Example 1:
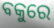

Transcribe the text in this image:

ବକୁରେ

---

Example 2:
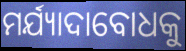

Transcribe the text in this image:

ମର୍ଯ୍ୟାଦାବୋଧକୁ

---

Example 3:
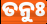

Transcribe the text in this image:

ତନୁଃ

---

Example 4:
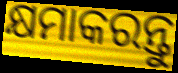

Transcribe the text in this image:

କ୍ଷମାକରନ୍ତୁ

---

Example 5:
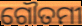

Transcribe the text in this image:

ଗୌତମୀ